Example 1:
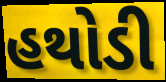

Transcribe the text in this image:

હથોડી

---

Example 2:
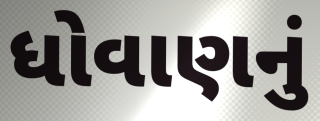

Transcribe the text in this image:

ધોવાણનું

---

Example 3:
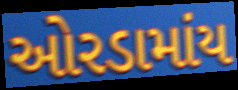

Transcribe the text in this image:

ઓરડામાંય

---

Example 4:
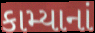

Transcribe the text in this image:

કામ્યાનાં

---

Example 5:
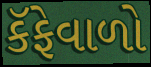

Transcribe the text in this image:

કૅફેવાળો